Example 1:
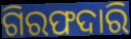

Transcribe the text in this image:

ଗିରଫଦାରି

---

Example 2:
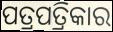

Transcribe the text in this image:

ପତ୍ରପତ୍ରିକାର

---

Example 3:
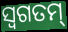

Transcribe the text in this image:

ସ୍ୱଗତମ୍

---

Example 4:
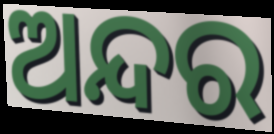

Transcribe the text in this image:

ଅନ୍ଦର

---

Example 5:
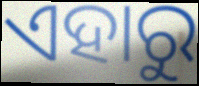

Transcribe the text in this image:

ଏହାରୁ